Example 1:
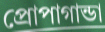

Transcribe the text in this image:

প্রোপাগান্ডা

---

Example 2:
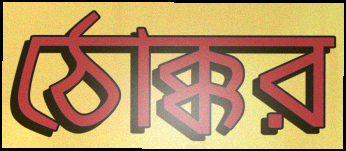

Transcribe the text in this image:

ঠোক্কর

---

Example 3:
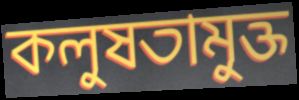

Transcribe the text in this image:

কলুষতামুক্ত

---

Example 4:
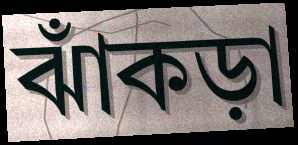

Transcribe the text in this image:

ঝাঁকড়া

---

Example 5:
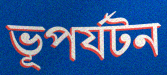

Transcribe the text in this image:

ভূপর্যটন